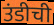
उंडीची